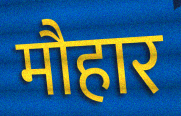
मौहार